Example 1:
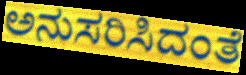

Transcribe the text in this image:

ಅನುಸರಿಸಿದಂತೆ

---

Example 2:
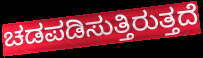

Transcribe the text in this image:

ಚಡಪಡಿಸುತ್ತಿರುತ್ತದೆ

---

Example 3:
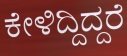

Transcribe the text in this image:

ಕೇಳಿದ್ದಿದ್ದರೆ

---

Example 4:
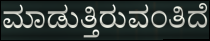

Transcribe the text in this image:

ಮಾಡುತ್ತಿರುವಂತಿದೆ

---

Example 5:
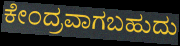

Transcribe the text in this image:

ಕೇಂದ್ರವಾಗಬಹುದು